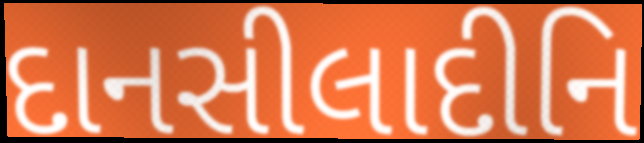
દાનસીલાદીનિ